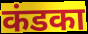
कंडका